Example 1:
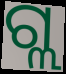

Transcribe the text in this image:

ଗ୍ଲ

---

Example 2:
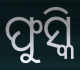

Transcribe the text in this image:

ଫୁସ୍କି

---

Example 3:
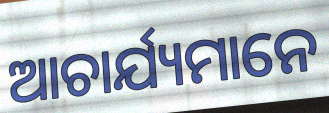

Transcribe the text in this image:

ଆଚାର୍ଯ୍ୟମାନେ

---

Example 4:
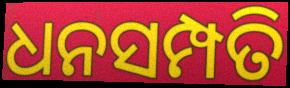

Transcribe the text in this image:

ଧନସମ୍ପତି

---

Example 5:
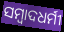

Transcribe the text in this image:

ସମ୍ବାଦଧର୍ମୀ